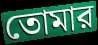
তোমার